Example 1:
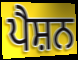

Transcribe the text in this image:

ਪੈਸ਼ਨ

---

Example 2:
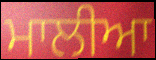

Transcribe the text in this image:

ਮਾਲੀਆ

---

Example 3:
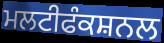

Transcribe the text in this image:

ਮਲਟੀਫੰਕਸ਼ਨਲ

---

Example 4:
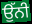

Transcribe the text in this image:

ਉੱਨੀ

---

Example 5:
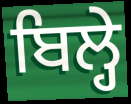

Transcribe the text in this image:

ਬਿਲ੍ਹੇ